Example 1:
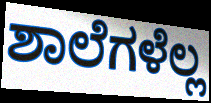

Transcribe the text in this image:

ಶಾಲೆಗಳೆಲ್ಲ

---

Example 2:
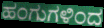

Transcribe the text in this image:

ಹಂಗುಗಳಿಂದ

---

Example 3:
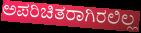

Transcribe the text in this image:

ಅಪರಿಚಿತರಾಗಿರಲಿಲ್ಲ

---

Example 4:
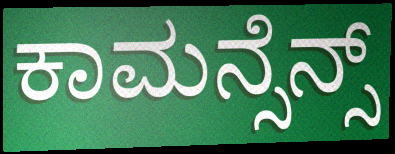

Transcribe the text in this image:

ಕಾಮನ್ಸೆನ್ಸ್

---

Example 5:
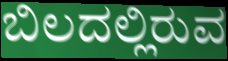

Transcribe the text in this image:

ಬಿಲದಲ್ಲಿರುವ